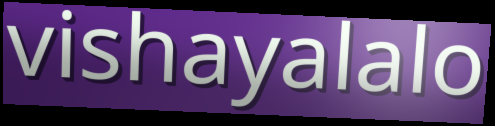
vishayalalo